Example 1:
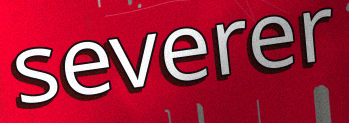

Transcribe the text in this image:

severer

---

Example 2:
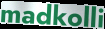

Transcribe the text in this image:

madkolli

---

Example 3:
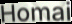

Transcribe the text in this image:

Homai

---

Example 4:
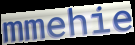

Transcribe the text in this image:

mmehie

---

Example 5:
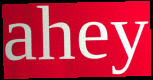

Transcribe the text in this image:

ahey